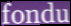
fondu